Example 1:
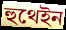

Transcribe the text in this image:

হুথেইন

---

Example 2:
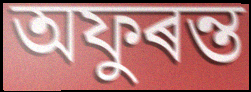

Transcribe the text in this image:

অফুৰন্ত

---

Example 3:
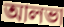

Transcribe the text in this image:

আলভা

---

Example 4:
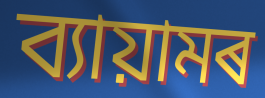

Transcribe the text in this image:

ব্যায়ামৰ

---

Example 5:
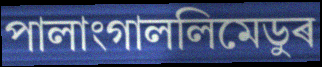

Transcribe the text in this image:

পালাংগাললিমেডুৰ